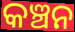
କଞ୍ଚନ